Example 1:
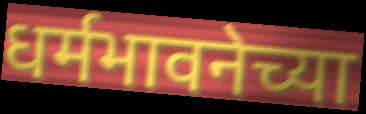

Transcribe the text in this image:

धर्मभावनेच्या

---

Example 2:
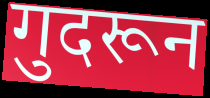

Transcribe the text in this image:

गुदरून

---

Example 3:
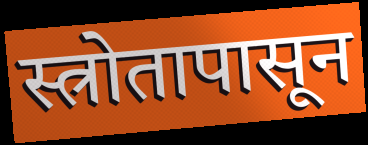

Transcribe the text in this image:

स्त्रोतापासून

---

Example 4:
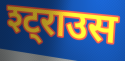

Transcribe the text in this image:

श्ट्राउस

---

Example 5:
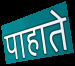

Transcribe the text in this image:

पाहाते